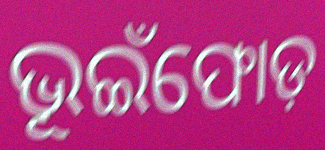
ଭୂଇଁଫୋଡ଼